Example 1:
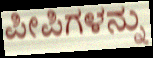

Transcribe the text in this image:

ಪೀಪಿಗಳನ್ನು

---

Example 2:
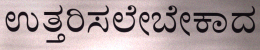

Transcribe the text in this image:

ಉತ್ತರಿಸಲೇಬೇಕಾದ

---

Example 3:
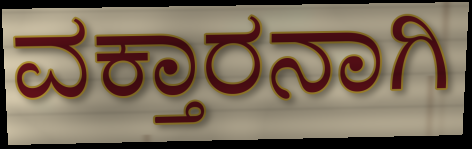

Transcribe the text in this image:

ವಕ್ತಾರನಾಗಿ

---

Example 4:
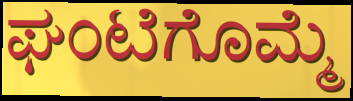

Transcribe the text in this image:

ಘಂಟೆಗೊಮ್ಮೆ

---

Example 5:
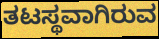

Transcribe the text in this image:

ತಟಸ್ಥವಾಗಿರುವ